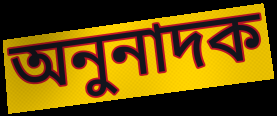
অনুনাদক